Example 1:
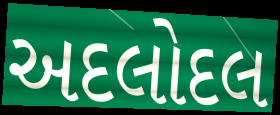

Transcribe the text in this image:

અદલોદલ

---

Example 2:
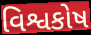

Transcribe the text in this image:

વિશ્વકોષ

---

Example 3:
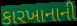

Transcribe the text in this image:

કારખાનાની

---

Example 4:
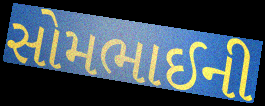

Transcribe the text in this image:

સોમભાઈની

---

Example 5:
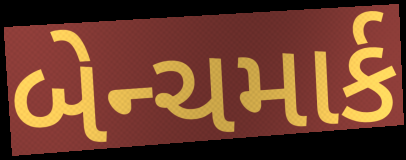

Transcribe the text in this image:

બેન્ચમાર્ક